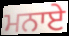
ਮਨਾਏ